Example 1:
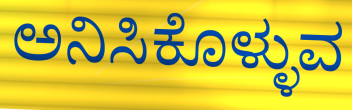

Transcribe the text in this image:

ಅನಿಸಿಕೊಳ್ಳುವ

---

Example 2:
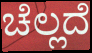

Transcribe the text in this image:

ಚೆಲ್ಲದೆ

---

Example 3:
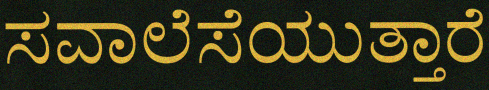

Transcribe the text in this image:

ಸವಾಲೆಸೆಯುತ್ತಾರೆ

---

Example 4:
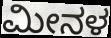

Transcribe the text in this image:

ಮೀನಳ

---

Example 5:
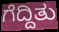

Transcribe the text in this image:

ಗೆದ್ದಿತು